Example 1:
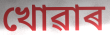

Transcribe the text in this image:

খোৱাৰ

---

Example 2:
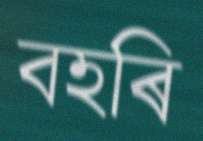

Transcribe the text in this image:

বহৰি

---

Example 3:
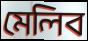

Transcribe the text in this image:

মেলিব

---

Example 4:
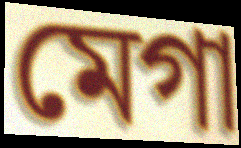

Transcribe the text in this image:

মেগা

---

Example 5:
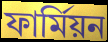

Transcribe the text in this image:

ফাৰ্মিয়ন